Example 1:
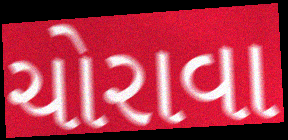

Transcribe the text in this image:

ચોરાવા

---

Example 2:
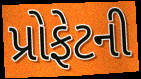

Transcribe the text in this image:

પ્રોફેટની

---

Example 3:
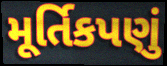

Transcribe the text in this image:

મૂર્તિકપણું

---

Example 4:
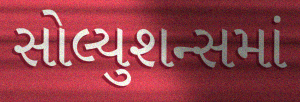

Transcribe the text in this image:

સોલ્યુશન્સમાં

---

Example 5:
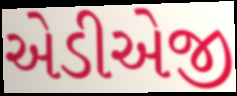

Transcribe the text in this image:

એડીએજી